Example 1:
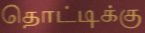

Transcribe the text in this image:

தொட்டிக்கு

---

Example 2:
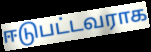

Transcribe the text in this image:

ஈடுபட்டவராக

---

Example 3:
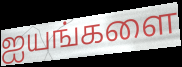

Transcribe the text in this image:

ஐயங்களை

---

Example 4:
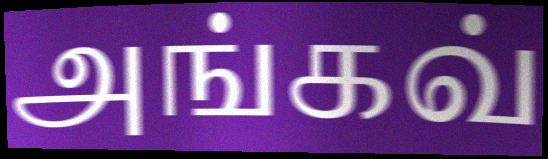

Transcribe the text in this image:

அங்கவ்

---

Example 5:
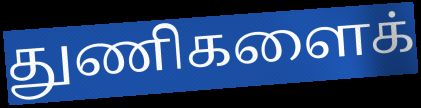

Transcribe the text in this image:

துணிகளைக்